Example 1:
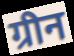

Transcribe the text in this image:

ग्रीन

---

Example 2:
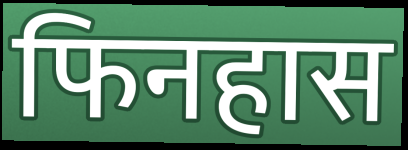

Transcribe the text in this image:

फिनहास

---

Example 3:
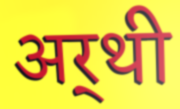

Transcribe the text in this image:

अर्थी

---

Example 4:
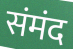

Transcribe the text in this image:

संमंद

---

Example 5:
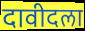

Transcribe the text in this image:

दावीदला